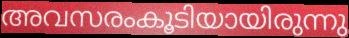
അവസരംകൂടിയായിരുന്നു